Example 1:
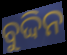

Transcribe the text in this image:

ବୁଦ୍ଦିନ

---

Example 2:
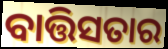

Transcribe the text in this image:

ବାତ୍ତିସତାର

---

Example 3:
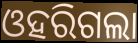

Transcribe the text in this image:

ଓହରିଗଲା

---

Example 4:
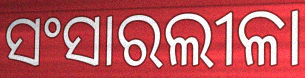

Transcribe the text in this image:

ସଂସାରଲୀଳା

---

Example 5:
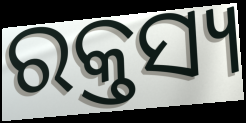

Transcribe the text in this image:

ରକ୍ତସ୍ୟ